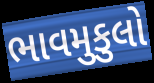
ભાવમુકુલો